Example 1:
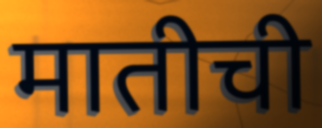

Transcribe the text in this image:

मातीची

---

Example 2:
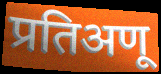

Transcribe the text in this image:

प्रतिअणू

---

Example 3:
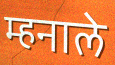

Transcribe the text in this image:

म्हनाले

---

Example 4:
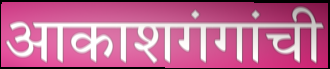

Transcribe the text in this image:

आकाशगंगांची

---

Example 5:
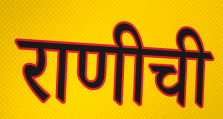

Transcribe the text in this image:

राणीची